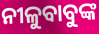
ନୀଳୁବାବୁଙ୍କ